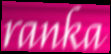
ranka